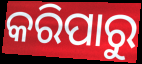
କରିପାରୁ